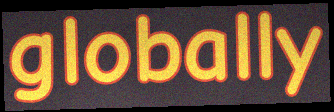
globally